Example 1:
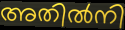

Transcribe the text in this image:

അതിൽനി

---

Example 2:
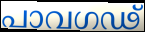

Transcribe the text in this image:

പാവഗഢ്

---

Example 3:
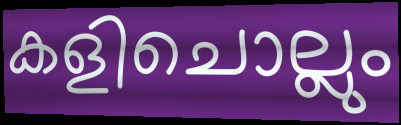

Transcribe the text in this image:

കളിചൊല്ലും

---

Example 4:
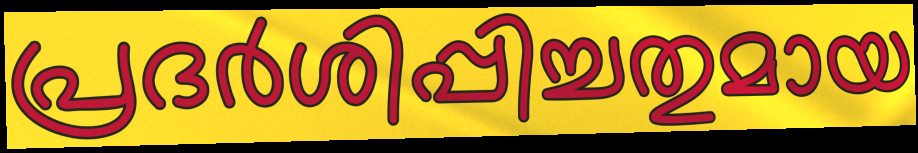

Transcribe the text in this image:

പ്രദർശിപ്പിച്ചതുമായ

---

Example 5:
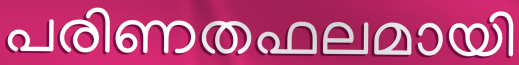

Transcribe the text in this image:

പരിണതഫലമായി